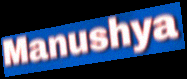
Manushya